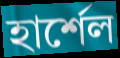
হার্শেল